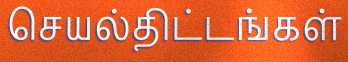
செயல்திட்டங்கள்